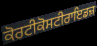
ਕੋਰਟੀਕੋਸਟੀਰਾਇਡਜ਼